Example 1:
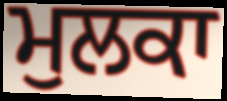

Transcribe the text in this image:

ਮੁਲਕਾ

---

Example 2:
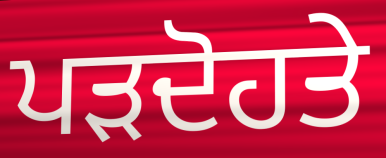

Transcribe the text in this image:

ਪੜਦੋਹਤੇ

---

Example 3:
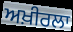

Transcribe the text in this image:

ਅਖ਼ੀਰਲਾ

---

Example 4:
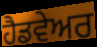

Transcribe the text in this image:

ਹੈਡਵੇਅਰ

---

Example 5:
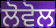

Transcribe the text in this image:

ਲੋਵੋਲ